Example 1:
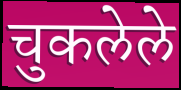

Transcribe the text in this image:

चुकलेले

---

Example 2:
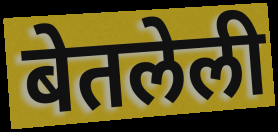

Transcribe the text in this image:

बेतलेली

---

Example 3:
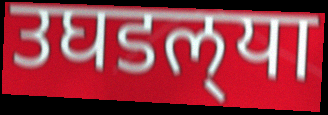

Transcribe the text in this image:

उघडल्या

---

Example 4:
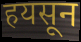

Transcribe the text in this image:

हयसून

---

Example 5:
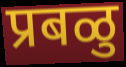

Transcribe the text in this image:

प्रबळु